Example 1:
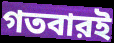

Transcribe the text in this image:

গতবারই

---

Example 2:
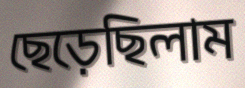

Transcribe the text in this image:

ছেড়েছিলাম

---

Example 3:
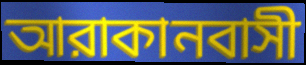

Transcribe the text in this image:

আরাকানবাসী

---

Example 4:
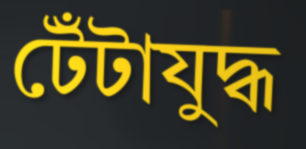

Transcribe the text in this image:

টেঁটাযুদ্ধ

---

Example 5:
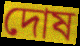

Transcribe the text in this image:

দোষ